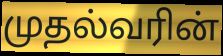
முதல்வரின்